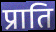
प्राति